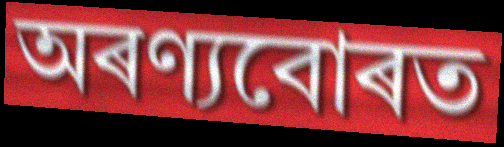
অৰণ্যবোৰত